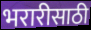
भरारीसाठी